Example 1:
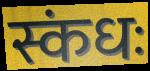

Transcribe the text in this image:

स्कंधः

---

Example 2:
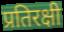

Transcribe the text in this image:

प्रतिरक्षी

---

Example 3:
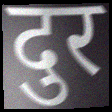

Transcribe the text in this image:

दुर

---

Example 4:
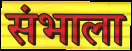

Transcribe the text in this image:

संभाला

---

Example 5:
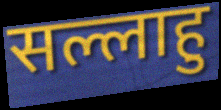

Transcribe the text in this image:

सल्लाहु